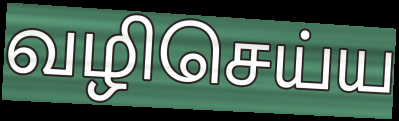
வழிசெய்ய